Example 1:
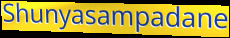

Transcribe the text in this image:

Shunyasampadane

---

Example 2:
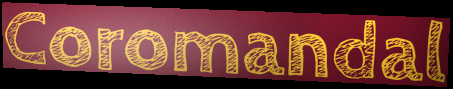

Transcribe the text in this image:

Coromandal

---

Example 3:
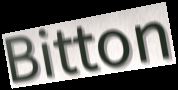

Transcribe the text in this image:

Bitton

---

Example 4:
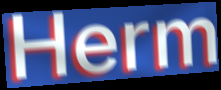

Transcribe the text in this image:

Herm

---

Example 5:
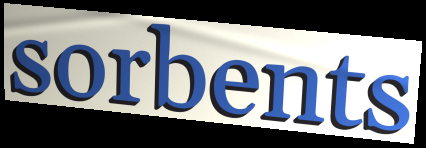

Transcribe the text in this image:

sorbents